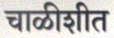
चाळीशीत